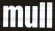
mull